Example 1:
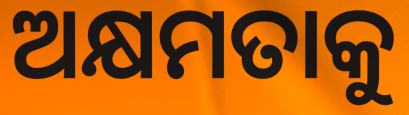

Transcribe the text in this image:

ଅକ୍ଷମତାକୁ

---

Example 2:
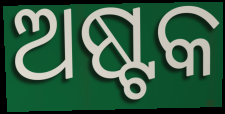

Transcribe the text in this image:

ଅଷ୍ଟକ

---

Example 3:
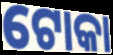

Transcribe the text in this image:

ଟୋକା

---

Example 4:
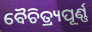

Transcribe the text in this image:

ବୈଚିତ୍ର୍ୟପୂର୍ଣ୍ଣ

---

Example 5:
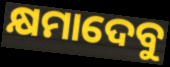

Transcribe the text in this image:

କ୍ଷମାଦେବୁ